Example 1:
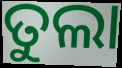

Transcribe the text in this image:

ତୁଲା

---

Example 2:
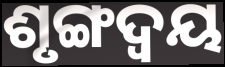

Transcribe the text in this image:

ଶୃଙ୍ଗଦ୍ୱୟ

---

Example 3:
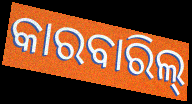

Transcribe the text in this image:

କାରବାରିଲ୍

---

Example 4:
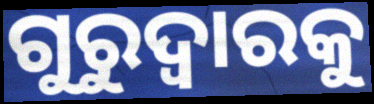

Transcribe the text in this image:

ଗୁରୁଦ୍ୱାରକୁ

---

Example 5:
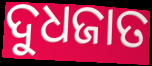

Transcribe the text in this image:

ଦୁଧଜାତ